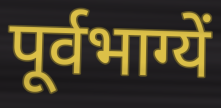
पूर्वभाग्यें